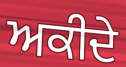
ਅਕੀਦੇ